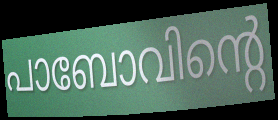
പാബോവിന്റെ